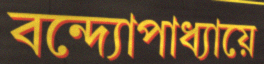
বন্দ্যোপাধ্যায়ে